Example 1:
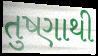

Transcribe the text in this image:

તુષ્ણાથી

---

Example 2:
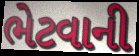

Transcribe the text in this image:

ભેટવાની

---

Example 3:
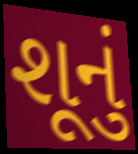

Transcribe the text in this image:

શૂનું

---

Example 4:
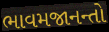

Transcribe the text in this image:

ભાવમજાનન્તો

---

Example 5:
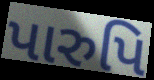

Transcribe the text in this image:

પારુપિ